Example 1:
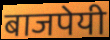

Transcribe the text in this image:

बाजपेयी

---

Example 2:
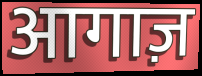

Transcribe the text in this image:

आगाज़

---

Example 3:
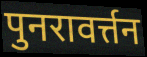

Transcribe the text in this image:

पुनरावर्त्तन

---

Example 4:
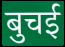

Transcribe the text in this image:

बुचई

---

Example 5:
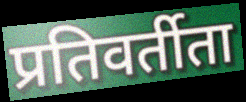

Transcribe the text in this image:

प्रतिवर्तीता